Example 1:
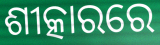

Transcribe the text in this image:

ଶୀତ୍କାରରେ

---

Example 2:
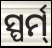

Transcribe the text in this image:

ସ୍ପର୍ମ୍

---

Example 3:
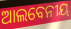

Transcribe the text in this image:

ଆଲବେନୀୟ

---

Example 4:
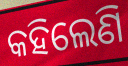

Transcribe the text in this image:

କହିଲେଣି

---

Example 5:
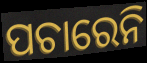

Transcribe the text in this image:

ପଚାରେନି